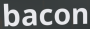
bacon